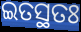
ଇତସ୍ଥତଃ